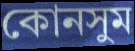
কোনসুম